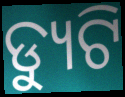
ଡ୍ୟୁଟି